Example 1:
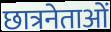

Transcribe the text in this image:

छात्रनेताओं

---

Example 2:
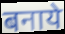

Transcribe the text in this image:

बनाये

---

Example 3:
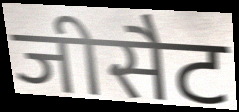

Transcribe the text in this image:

जीसैट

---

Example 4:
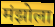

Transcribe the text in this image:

मंझोला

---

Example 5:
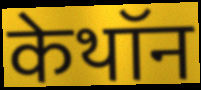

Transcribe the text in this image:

केथॉन